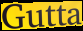
Gutta